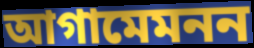
আগামেমনন